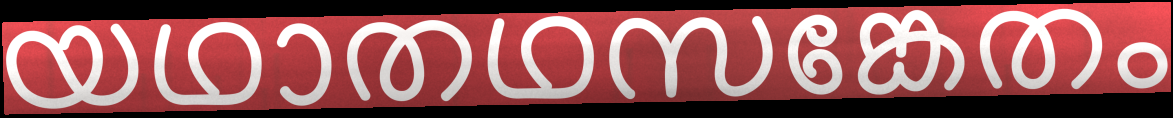
യഥാതഥസങ്കേതം